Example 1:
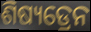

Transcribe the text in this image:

ଶିଷ୍ୟଡ୍ରେନ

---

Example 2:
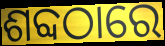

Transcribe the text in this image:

ଶବ୍ଦଠାରେ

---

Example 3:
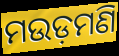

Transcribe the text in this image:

ମଉଡ଼ମଣି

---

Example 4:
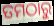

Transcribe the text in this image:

ତମଠାରୁ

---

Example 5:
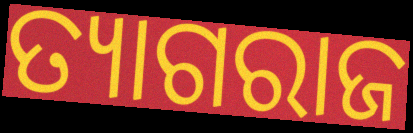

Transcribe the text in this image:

ତ୍ୟାଗରାଜ